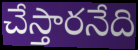
చేస్తారనేది